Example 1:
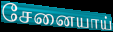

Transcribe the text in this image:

சேனையாய்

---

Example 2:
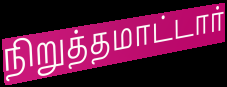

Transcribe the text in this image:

நிறுத்தமாட்டார்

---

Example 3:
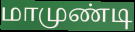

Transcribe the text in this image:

மாமுண்டி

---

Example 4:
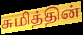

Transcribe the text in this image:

சுமித்தின்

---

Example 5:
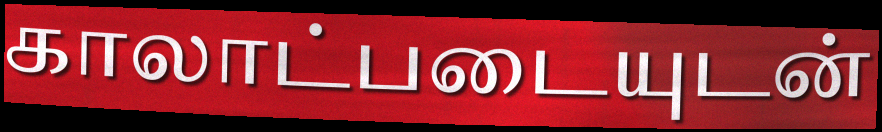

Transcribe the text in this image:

காலாட்படையுடன்